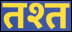
तश्त